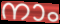
നാം